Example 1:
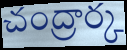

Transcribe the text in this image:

చంద్రార్క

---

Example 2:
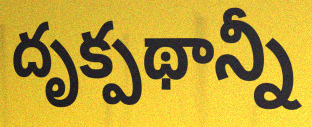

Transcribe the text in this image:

దృక్పథాన్నీ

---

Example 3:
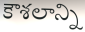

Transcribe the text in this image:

కౌశలాన్ని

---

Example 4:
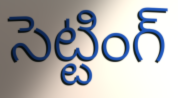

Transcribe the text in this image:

సెట్టింగ్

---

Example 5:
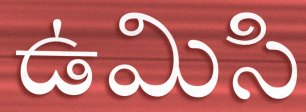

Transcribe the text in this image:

ఉమిసి